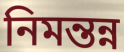
নিমন্তন্ন